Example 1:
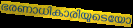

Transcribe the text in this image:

ഭരണാധികാരിയുടെയോ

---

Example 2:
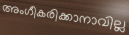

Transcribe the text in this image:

അംഗീകരിക്കാനാവില്ല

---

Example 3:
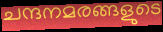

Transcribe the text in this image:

ചന്ദനമരങ്ങളുടെ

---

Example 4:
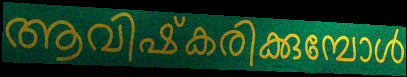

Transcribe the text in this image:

ആവിഷ്‌കരിക്കുമ്പോൾ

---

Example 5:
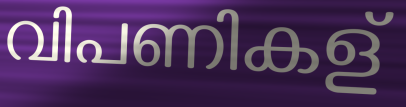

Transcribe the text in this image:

വിപണികള്